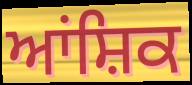
ਆਂਸ਼ਿਕ